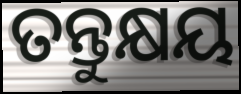
ତନ୍ତୁକ୍ଷୟ